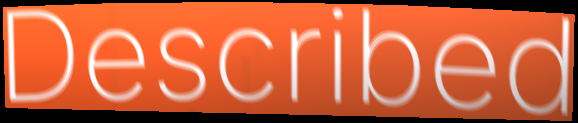
Described